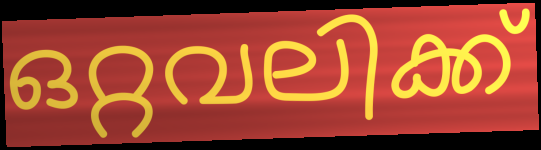
ഒറ്റവലിക്ക്